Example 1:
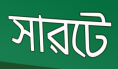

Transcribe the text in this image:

সাৱটে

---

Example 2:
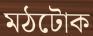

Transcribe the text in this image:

মঠটোক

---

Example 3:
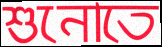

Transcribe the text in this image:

শুনোতে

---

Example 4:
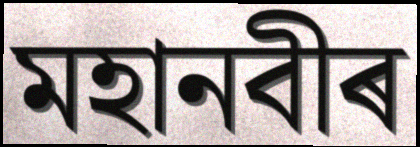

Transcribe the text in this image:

মহানবীৰ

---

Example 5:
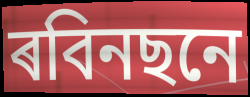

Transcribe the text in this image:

ৰবিনছনে